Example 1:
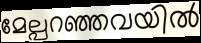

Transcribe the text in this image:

മേല്പറഞ്ഞവയിൽ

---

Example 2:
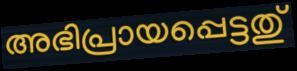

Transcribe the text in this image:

അഭിപ്രായപ്പെട്ടതു്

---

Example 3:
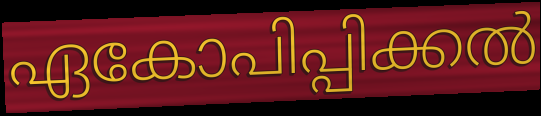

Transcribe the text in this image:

ഏകോപിപ്പിക്കൽ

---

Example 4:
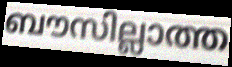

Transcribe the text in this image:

ബൗസില്ലാത്ത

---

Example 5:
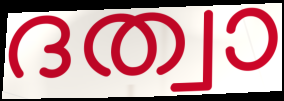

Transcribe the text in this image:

ദത്വാ